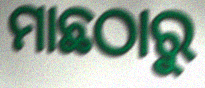
ମାଛଠାରୁ